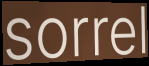
sorrel